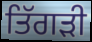
ਤਿੱਗੜੀ